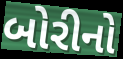
બોરીનો